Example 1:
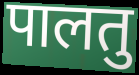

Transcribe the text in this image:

पालतु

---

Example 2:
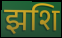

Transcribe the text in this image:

झशि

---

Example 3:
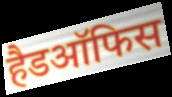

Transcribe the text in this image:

हैडऑफिस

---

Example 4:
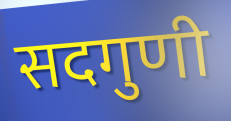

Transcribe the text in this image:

सदगुणी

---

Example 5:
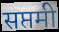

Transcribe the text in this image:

सप्तमी